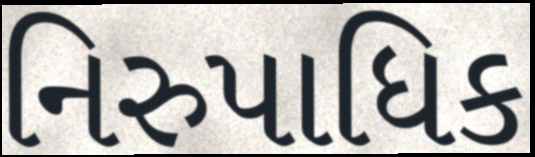
નિરુપાધિક